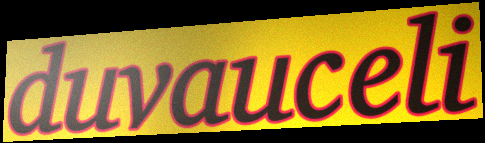
duvauceli